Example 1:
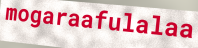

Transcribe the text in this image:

mogaraafulalaa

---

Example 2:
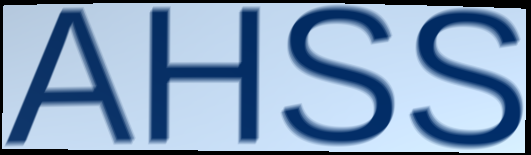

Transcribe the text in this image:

AHSS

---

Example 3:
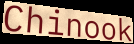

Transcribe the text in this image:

Chinook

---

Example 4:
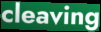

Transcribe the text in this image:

cleaving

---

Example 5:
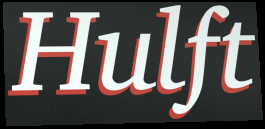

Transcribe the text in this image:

Hulft